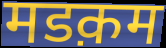
मडक़म